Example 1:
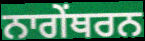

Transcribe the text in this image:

ਨਾਗੇਂਥਰਨ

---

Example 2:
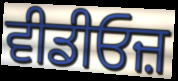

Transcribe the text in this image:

ਵੀਡੀਓਜ਼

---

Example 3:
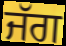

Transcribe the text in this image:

ਜੱਗ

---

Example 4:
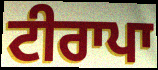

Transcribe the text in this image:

ਟੀਰਾਪਾ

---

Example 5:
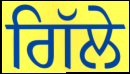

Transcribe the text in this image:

ਗਿੱਲੇ